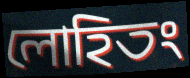
লোহিতং